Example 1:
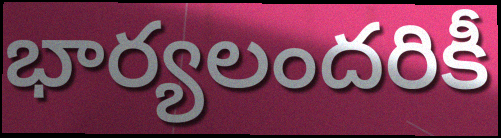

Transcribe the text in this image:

భార్యలందరికీ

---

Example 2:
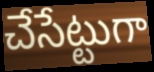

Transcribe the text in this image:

చేసేట్టుగా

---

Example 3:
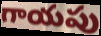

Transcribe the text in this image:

గాయపు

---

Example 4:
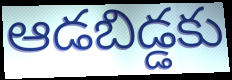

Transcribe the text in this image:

ఆడబిడ్డకు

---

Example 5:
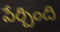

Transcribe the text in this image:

పేర్చింది